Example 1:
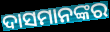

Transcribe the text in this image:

ଦାସମାନଙ୍କର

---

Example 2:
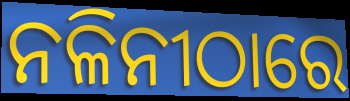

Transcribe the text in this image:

ନଳିନୀଠାରେ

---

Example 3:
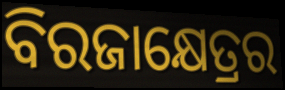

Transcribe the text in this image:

ବିରଜାକ୍ଷେତ୍ରର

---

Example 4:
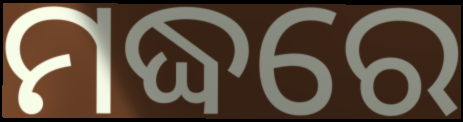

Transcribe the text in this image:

ମଦ୍ଧରେ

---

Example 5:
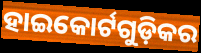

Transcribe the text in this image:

ହାଇକୋର୍ଟଗୁଡ଼ିକର